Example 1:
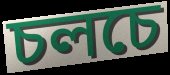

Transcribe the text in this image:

চলচে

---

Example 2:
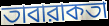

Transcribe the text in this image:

তাবারাকতা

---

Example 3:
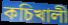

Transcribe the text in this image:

কচিখালী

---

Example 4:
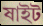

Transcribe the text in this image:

ষাইট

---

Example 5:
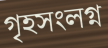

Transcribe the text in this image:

গৃহসংলগ্ন